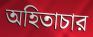
অহিতাচার